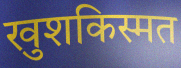
खुशकिस्मत